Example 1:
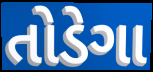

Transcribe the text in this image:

તોડેગા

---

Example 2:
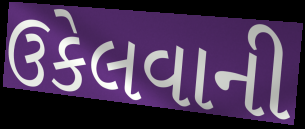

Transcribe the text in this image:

ઉકેલવાની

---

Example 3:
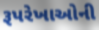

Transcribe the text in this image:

રૂપરેખાઓની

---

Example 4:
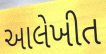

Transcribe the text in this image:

આલેખીત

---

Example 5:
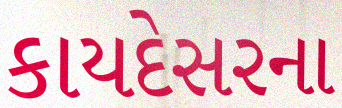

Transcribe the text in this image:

કાયદેસરના